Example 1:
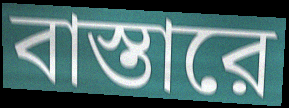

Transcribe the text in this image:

বাস্তারে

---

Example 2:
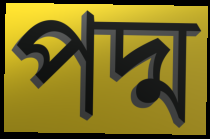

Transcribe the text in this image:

পদ্ম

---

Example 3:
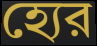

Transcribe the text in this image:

হ্যের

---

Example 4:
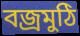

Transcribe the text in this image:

বজ্রমুঠি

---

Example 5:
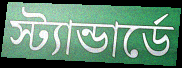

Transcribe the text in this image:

স্ট্যান্ডার্ডে